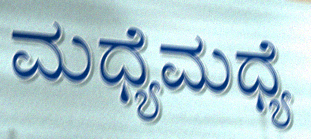
ಮಧ್ಯೆಮಧ್ಯೆ